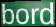
bord